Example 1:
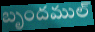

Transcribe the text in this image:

బృందముల్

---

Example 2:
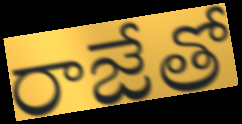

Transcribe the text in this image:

రాజేతో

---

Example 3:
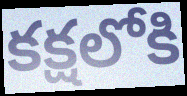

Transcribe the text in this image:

కక్షలోకి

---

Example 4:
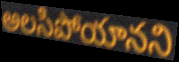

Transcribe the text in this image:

అలసిపోయానని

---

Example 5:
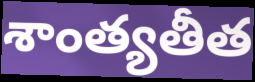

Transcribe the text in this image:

శాంత్యతీత